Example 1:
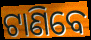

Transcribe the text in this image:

ଟାଣିବେ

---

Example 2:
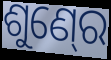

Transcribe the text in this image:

ଶୁଣ୍‍ରେ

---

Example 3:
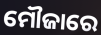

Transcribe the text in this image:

ମୌଜାରେ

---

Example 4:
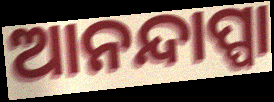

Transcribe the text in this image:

ଆନନ୍ଦାପ୍ପା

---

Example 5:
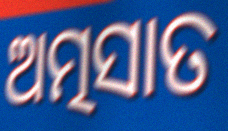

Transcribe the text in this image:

ଅତ୍ମସାତ